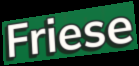
Friese